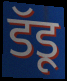
डॅडू